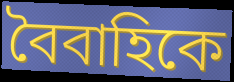
বৈবাহিকে